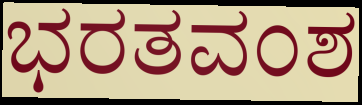
ಭರತವಂಶ